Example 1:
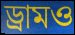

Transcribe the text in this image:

ড্রামও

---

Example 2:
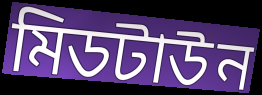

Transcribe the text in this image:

মিডটাউন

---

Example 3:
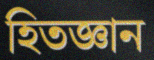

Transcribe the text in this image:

হিতজ্ঞান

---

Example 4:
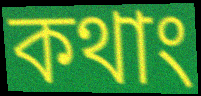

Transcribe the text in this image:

কথাং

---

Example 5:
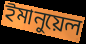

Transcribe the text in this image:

ইমানুয়েল